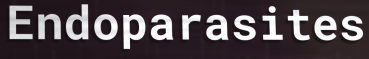
Endoparasites